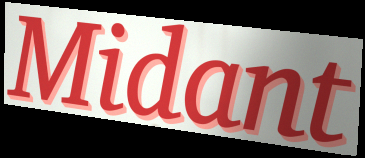
Midant